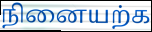
நினையற்க